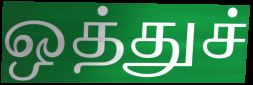
ஒத்துச்